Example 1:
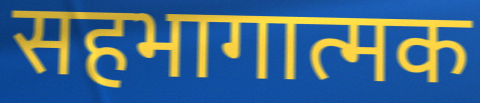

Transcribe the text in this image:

सहभागात्मक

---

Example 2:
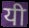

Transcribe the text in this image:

यी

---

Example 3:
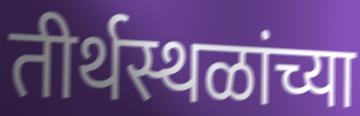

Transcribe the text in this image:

तीर्थस्थळांच्या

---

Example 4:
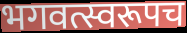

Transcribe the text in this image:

भगवत्स्वरूपच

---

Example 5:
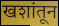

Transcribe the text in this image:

खशांतून